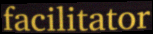
facilitator